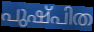
പുഷ്പിത